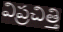
విప్రచిత్తి